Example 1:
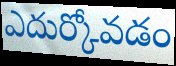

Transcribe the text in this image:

ఎదుర్కోవడం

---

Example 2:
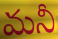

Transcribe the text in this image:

మనీ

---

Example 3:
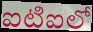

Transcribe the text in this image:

ఐటిఐలో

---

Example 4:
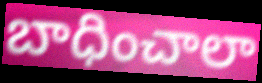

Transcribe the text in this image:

బాధించాలా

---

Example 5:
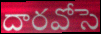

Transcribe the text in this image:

దారవోసె